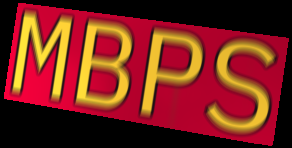
MBPS